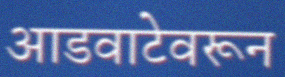
आडवाटेवरून